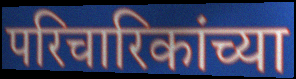
परिचारिकांच्या